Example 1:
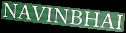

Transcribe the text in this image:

NAVINBHAI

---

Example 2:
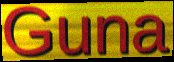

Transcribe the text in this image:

Guna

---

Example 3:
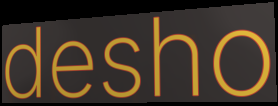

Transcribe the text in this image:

desho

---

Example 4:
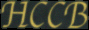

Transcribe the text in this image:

HCCB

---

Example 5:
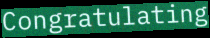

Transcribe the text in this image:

Congratulating